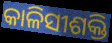
କାଳିସୀଶକ୍ତି